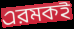
এরমকই